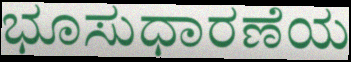
ಭೂಸುಧಾರಣೆಯ